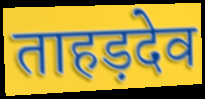
ताहड़देव